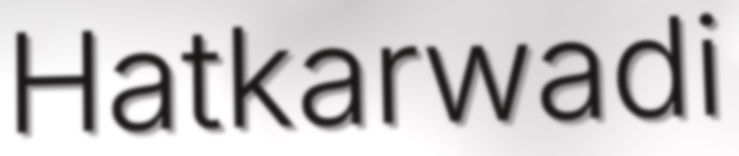
Hatkarwadi